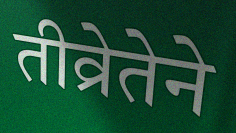
तीव्रेतेने